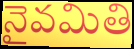
నైవమితి